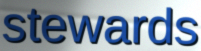
stewards